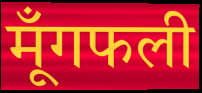
मूँगफली